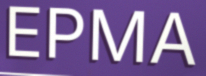
EPMA